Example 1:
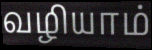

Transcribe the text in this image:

வழியாம்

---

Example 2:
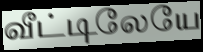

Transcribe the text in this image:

வீட்டிலேயே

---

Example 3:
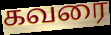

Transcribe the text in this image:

கவரை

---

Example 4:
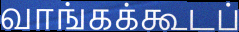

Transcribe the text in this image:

வாங்கக்கூடப்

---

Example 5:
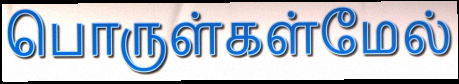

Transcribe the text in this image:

பொருள்கள்மேல்